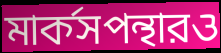
মার্কসপন্থারও